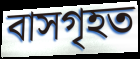
বাসগৃহত